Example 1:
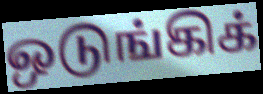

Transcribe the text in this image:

ஒடுங்கிக்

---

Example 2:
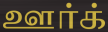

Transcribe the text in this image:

ஊர்க்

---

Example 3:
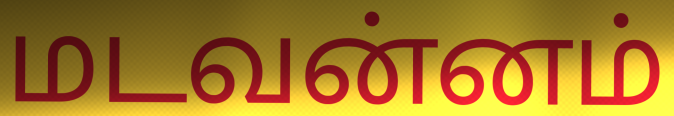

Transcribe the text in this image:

மடவன்னம்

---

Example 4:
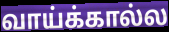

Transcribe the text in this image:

வாய்க்கால்ல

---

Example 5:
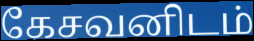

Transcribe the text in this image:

கேசவனிடம்